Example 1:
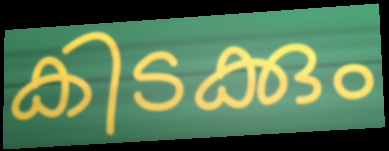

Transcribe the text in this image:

കിടക്കും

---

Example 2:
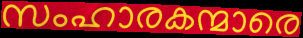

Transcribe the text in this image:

സംഹാരകന്മാരെ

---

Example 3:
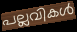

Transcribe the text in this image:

പല്ലവികൾ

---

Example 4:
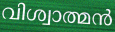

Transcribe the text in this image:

വിശ്വാത്മൻ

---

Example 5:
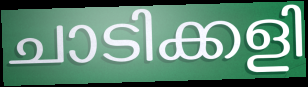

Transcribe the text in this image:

ചാടിക്കളി